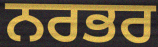
ਨਰਭਰ